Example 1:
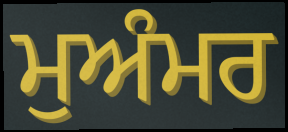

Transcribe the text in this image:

ਮੁਅੰਮਰ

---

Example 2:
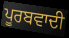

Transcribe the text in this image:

ਪੂਰਬਵਾਦੀ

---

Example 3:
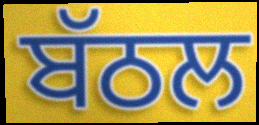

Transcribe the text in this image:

ਬੱਠਲ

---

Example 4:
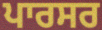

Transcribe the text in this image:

ਪਾਰਸਰ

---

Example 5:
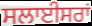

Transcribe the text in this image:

ਸਲਾਈਸਰਾਂ